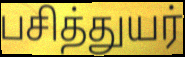
பசித்துயர்